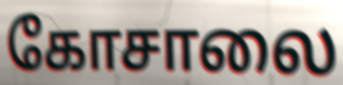
கோசாலை